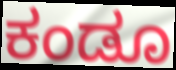
ಕಂಡೂ